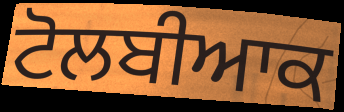
ਟੋਲਬੀਆਕ